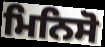
ਮਿਨਿਸੋ